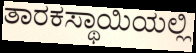
ತಾರಕಸ್ಥಾಯಿಯಲ್ಲಿ